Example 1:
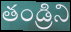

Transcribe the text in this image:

తండ్రిని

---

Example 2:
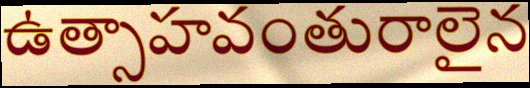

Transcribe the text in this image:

ఉత్సాహవంతురాలైన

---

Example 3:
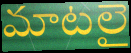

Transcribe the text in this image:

మాటలై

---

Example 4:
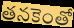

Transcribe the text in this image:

తనకెంతో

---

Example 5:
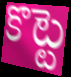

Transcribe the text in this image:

కొట్టె